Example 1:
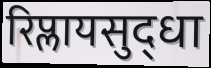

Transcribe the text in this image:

रिप्लायसुद्धा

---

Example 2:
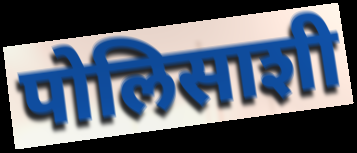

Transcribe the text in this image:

पोलिसाशी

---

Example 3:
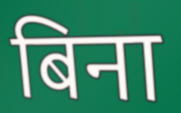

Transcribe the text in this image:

बिना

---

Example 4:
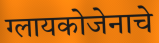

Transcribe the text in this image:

ग्लायकोजेनाचे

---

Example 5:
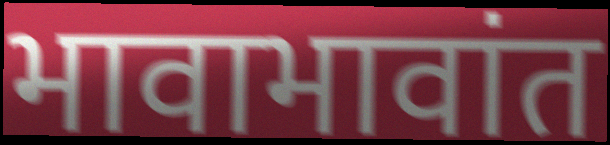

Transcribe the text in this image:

भावाभावांत